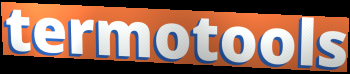
termotools